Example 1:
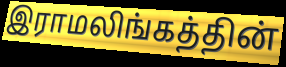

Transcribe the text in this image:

இராமலிங்கத்தின்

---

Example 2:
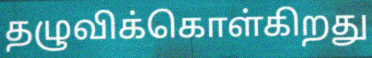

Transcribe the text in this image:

தழுவிக்கொள்கிறது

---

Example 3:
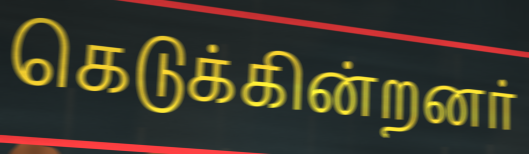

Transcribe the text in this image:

கெடுக்கின்றனர்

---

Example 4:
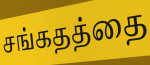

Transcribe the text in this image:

சங்கதத்தை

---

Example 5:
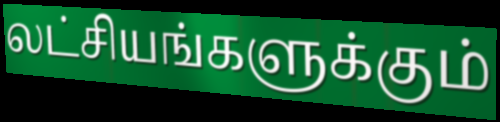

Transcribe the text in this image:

லட்சியங்களுக்கும்